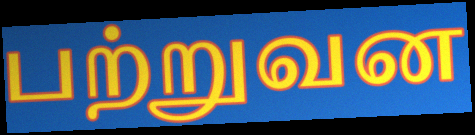
பற்றுவன